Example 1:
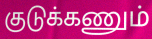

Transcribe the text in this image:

குடுக்கணும்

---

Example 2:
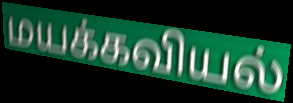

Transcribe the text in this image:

மயக்கவியல்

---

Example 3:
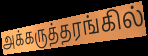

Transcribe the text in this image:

அக்கருத்தரங்கில்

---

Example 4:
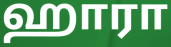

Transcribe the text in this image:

ஹாரா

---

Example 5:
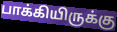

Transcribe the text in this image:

பாக்கியிருக்கு